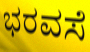
ಭರವಸೆ